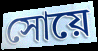
সোয়ে